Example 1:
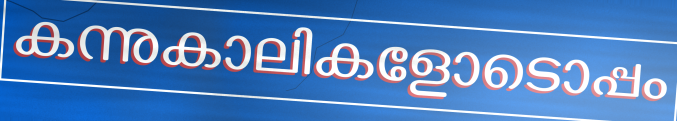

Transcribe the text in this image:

കന്നുകാലികളോടൊപ്പം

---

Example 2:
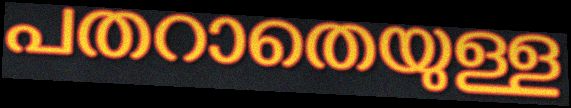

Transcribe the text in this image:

പതറാതെയുള്ള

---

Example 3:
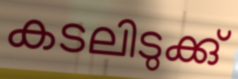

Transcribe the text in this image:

കടലിടുക്കു്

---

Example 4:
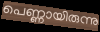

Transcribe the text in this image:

പെണ്ണായിരുന്നു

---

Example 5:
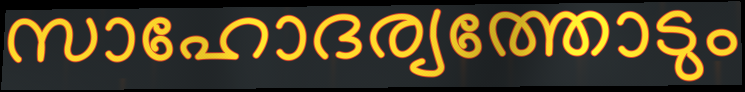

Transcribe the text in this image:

സാഹോദര്യത്തോടും